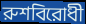
রুশবিরোধী